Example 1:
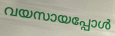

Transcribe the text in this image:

വയസായപ്പോൾ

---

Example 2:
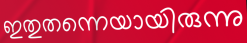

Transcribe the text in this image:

ഇതുതന്നെയായിരുന്നു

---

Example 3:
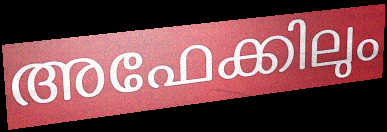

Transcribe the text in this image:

അഫേക്കിലും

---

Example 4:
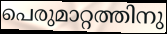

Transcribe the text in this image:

പെരുമാറ്റത്തിനു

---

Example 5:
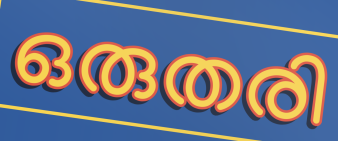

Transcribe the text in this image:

ഒരുതരി